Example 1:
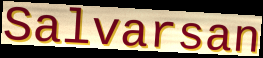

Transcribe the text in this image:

Salvarsan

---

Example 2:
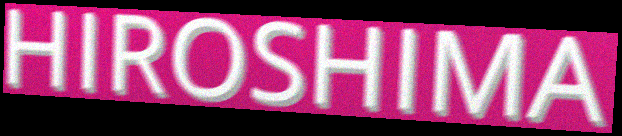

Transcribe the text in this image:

HIROSHIMA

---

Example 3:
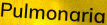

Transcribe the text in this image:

Pulmonaria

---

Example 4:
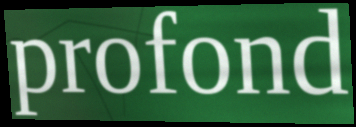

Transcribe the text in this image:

profond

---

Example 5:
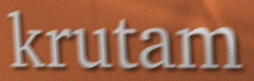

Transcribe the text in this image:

krutam